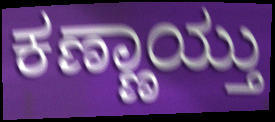
ಕಣ್ಣಾಯ್ತು